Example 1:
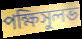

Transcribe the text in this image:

পক্ষিসুলভ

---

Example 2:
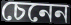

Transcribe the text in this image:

চেনেন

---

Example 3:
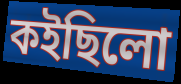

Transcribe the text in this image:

কইছিলো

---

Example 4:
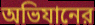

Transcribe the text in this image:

অভিযানের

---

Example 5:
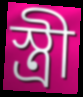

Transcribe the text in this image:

স্ত্রী